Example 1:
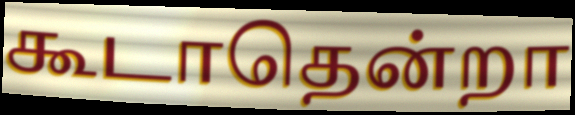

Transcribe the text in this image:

கூடாதென்றா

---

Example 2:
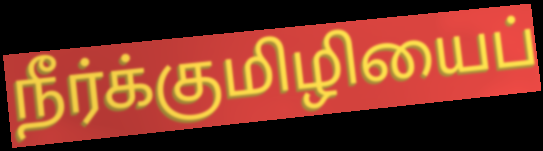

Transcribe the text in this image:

நீர்க்குமிழியைப்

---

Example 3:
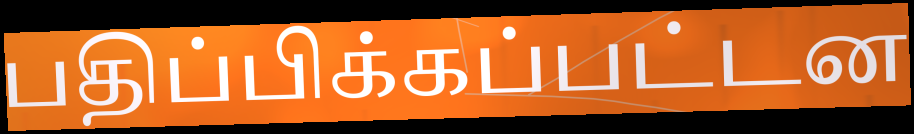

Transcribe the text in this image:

பதிப்பிக்கப்பட்டன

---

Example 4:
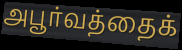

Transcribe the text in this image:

அபூர்வத்தைக்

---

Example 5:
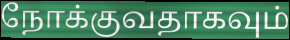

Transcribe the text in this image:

நோக்குவதாகவும்